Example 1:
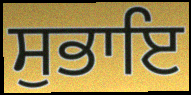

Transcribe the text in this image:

ਸੁਭਾਇ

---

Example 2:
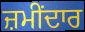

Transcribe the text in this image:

ਜ਼ਮੀਂਦਾਰ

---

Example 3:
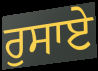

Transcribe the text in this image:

ਰੁਸਾਏ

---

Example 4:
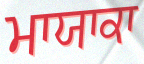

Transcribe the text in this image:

ਮਾਯਾਕਾ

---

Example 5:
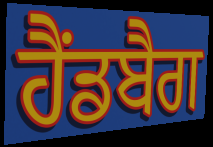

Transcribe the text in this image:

ਹੈਂਡਬੈਗ